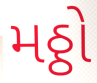
મઠ્ઠો